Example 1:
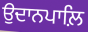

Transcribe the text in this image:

ਉਦਾਨਪਾਲ਼ਿ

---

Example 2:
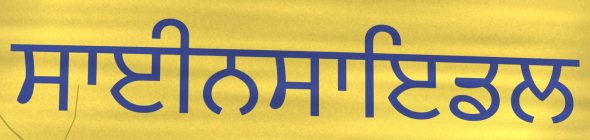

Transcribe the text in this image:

ਸਾਈਨਸਾਇਡਲ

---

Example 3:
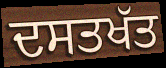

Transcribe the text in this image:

ਦਸਤਖੱਤ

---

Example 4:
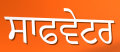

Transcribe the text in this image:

ਸਾਫਵੇਟਰ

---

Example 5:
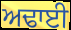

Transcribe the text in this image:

ਅਢਾਈ